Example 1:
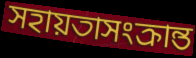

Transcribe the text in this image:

সহায়তাসংক্রান্ত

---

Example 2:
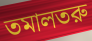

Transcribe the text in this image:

তমালতরু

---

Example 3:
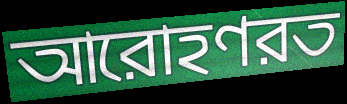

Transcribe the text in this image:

আরোহণরত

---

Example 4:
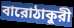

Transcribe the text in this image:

বারোঠাকুরী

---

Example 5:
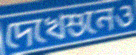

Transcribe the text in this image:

দেখেশুনেও